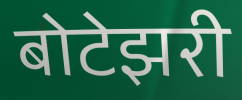
बोटेझरी